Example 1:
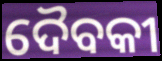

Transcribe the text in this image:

ଦୈବକୀ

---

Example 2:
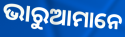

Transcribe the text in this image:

ଭାରୁଆମାନେ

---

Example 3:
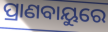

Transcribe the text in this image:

ପ୍ରାଣବାୟୁରେ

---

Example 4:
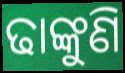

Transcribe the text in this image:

ଢାଙ୍କୁଣି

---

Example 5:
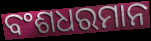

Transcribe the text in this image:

ବଂଶଧରମାନ